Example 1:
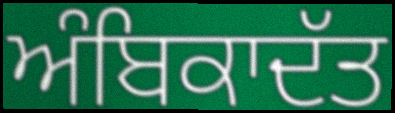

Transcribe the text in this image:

ਅੰਬਿਕਾਦੱਤ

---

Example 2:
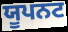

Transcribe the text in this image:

ਯੂਪਨਟ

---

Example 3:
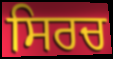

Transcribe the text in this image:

ਸਿਰਚ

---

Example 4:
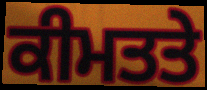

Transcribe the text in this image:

ਕੀਮਤਤੇ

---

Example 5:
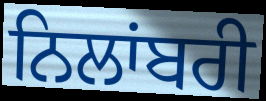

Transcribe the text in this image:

ਨਿਲਾਂਬਰੀ